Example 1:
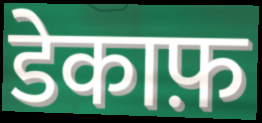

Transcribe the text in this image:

डेकाफ़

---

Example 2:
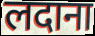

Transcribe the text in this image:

लदाना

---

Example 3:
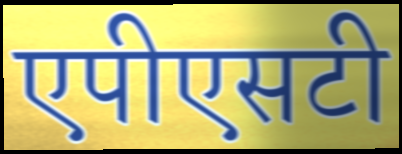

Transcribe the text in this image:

एपीएसटी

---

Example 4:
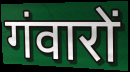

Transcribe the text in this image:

गंवारों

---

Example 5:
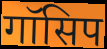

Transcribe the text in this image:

गॉसिप